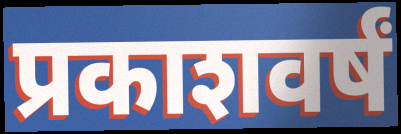
प्रकाशवर्षं